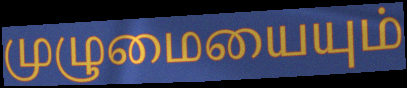
முழுமையையும்